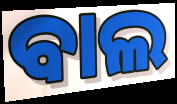
ବାଲ